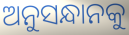
ଅନୁସନ୍ଧାନକୁ